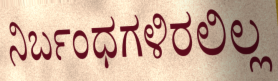
ನಿರ್ಬಂಧಗಳಿರಲಿಲ್ಲ